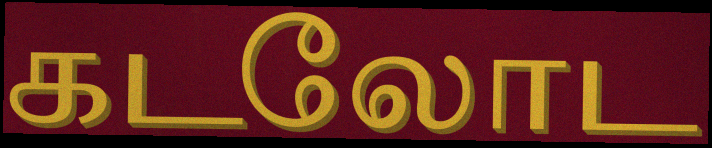
கடலோட